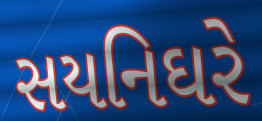
સયનિઘરે